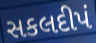
સકલદીપં